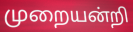
முறையன்றி